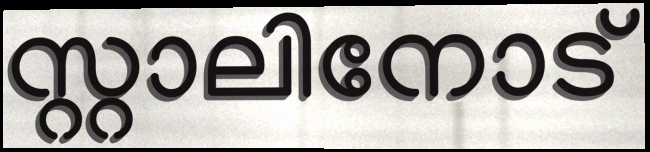
സ്റ്റാലിനോട്